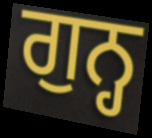
ਗੁਨ੍ਹ